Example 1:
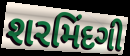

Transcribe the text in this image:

શરમિંદગી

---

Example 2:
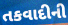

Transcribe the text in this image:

તકવાદીની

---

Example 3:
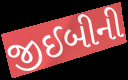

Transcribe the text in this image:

જીઈબીની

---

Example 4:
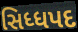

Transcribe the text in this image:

સિધ્ધપદ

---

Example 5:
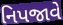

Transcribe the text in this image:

નિપજાવે